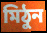
মিঠুন